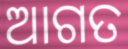
ଆଗତ